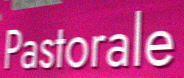
Pastorale